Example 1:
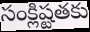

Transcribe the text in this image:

సంక్లిష్టతకు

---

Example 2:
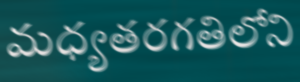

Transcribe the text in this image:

మధ్యతరగతిలోని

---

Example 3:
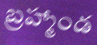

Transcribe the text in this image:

బ్రహ్మాండ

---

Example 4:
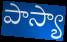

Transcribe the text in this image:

పాస్యా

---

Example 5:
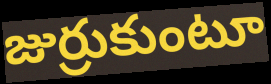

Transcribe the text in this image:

జుర్రుకుంటూ